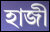
হাজী